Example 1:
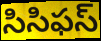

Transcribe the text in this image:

సిసిఫస్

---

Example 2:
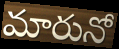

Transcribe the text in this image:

మారునో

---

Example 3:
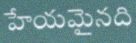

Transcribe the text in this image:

హేయమైనది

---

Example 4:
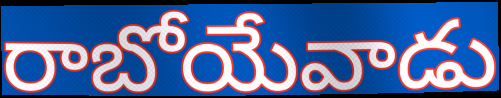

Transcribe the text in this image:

రాబోయేవాడు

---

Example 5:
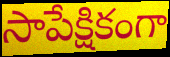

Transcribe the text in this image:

సాపేక్షికంగా